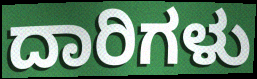
ದಾರಿಗಳು